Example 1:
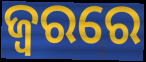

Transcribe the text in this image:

ଜ୍ବରରେ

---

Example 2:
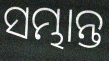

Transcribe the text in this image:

ସମ୍ଭାନ୍ତ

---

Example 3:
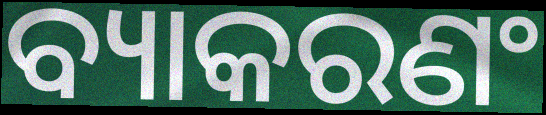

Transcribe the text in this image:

ବ୍ୟାକରଣଂ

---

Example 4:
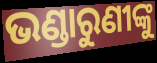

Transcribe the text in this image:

ଭଣ୍ଡାରୁଣୀଙ୍କୁ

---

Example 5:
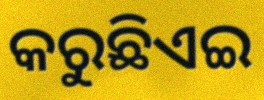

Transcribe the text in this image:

କରୁଛିଏଇ